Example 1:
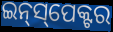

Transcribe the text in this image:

ଇନ୍‍ସ୍‌ପେକ୍ଟର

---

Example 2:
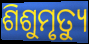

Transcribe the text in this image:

ଶିଶୁମୃତ୍ୟୁ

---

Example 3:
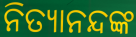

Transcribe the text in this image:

ନିତ୍ୟାନନ୍ଦଙ୍କ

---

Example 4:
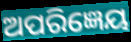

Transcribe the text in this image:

ଅପରିଜ୍ଞେୟ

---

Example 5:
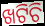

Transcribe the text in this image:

ଖଟିଚି